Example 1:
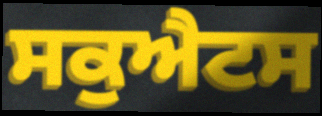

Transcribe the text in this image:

ਸਕੁਐਟਸ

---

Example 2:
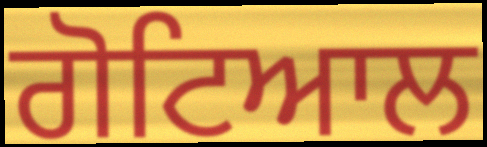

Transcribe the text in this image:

ਗੋਟਿਆਲ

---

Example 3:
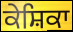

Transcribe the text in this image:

ਕੇਸ਼ਿਕਾ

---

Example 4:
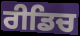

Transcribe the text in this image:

ਰੀਡਿਚ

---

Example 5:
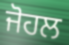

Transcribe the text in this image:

ਜੋਹਲ